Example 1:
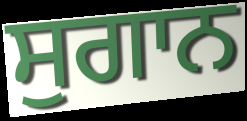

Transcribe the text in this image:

ਸੁਗਾਨ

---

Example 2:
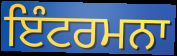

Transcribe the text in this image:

ਇੰਟਰਮਨਾ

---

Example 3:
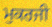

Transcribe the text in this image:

ਮੁਕਰਜੀ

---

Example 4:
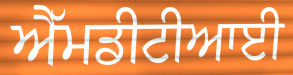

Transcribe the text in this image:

ਐੱਮਡੀਟੀਆਈ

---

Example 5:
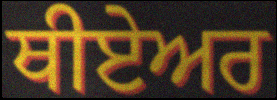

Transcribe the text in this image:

ਥੀਏਅਰ